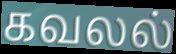
கவலல்